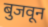
बुजवून